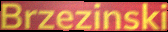
Brzezinski